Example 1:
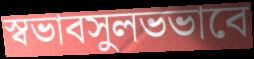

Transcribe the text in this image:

স্বভাবসুলভভাবে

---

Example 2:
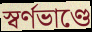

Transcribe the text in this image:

স্বর্ণভাণ্ডে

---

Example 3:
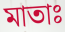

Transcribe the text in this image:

মাতাঃ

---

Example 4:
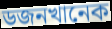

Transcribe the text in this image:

ডজনখানেক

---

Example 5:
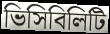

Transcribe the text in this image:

ভিসিবিলিটি